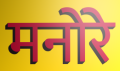
मनोरे